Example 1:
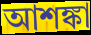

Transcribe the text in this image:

আশঙ্কা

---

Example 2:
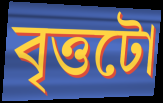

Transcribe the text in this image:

বৃত্তটো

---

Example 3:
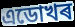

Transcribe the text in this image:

এডোখৰ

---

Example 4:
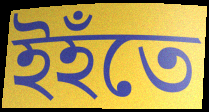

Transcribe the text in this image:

ইহঁতে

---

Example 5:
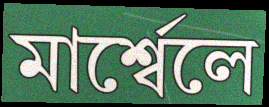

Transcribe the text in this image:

মাৰ্শ্বেলে